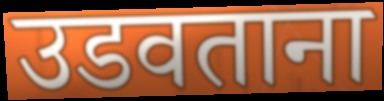
उडवताना